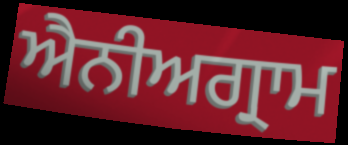
ਐਨੀਅਗ੍ਰਾਮ